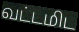
வட்டமிட